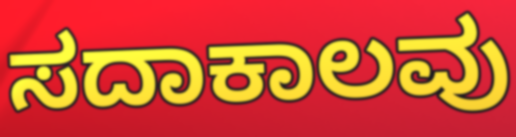
ಸದಾಕಾಲವು